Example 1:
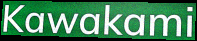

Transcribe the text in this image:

Kawakami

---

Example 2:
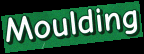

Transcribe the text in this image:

Moulding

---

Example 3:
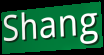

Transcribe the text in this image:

Shang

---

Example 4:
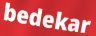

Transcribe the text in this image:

bedekar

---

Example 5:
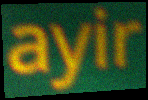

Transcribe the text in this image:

ayir